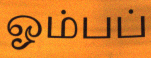
ஓம்பப்